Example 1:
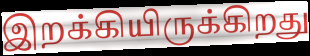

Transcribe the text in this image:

இறக்கியிருக்கிறது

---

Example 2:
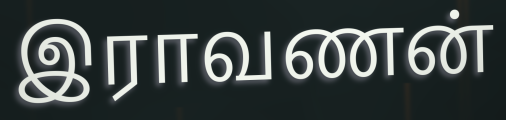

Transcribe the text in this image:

இராவணன்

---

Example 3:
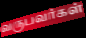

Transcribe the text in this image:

வருபவர்கள்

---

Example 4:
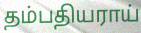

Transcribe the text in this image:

தம்பதியராய்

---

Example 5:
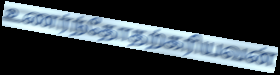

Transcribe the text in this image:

உணர்ந்தோதற்கரியவன்